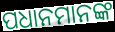
ପଧାନମାନଙ୍କ